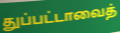
துப்பட்டாவைத்